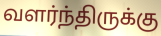
வளர்ந்திருக்கு